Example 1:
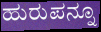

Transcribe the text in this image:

ಹುರುಪನ್ನೂ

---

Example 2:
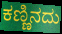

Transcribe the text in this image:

ಕಣ್ಣಿನದು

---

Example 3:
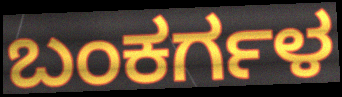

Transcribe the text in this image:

ಬಂಕರ್ಗಳ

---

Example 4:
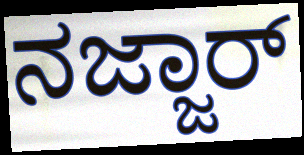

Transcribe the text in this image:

ನಜ್ಜಾರ್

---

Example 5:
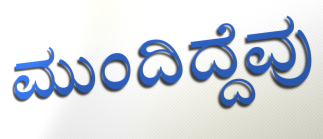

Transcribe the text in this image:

ಮುಂದಿದ್ದೆವು